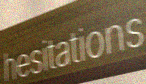
hesitations